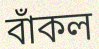
বাঁকল